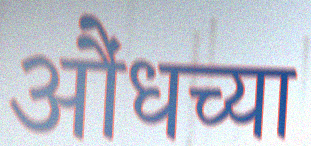
औंधच्या